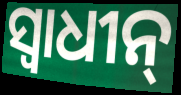
ସ୍ଵାଧୀନ୍